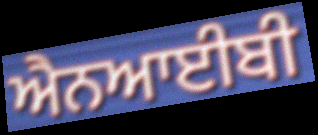
ਐਨਆਈਬੀ